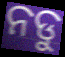
ନଡୁ